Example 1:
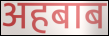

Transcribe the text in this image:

अहबाब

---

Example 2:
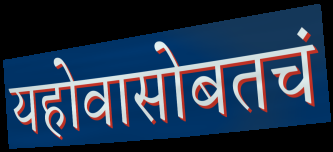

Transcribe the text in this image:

यहोवासोबतचं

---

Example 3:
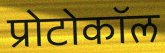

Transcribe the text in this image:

प्रोटोकॉल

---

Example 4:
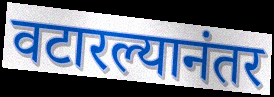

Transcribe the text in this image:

वटारल्यानंतर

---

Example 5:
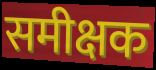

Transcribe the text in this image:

समीक्षक